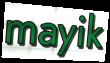
mayik